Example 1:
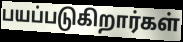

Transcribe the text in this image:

பயப்படுகிறார்கள்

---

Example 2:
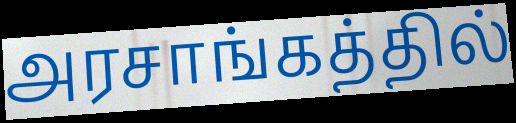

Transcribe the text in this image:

அரசாங்கத்தில்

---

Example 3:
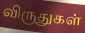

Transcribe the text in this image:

விருதுகள்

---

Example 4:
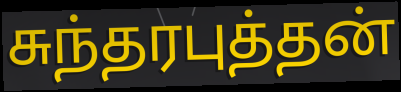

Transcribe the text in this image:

சுந்தரபுத்தன்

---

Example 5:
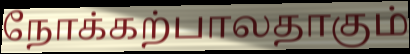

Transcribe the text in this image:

நோக்கற்பாலதாகும்